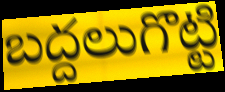
బద్దలుగొట్టి